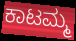
ಕಾಟಮ್ಮ